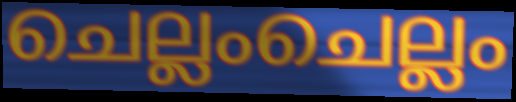
ചെല്ലംചെല്ലം